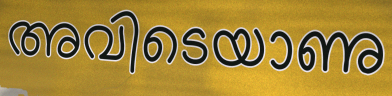
അവിടെയാണു